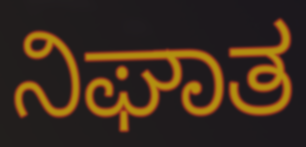
ನಿಘಾತ